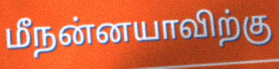
மீநன்னயாவிற்கு